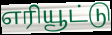
எரியூட்டு